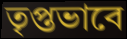
তৃপ্তভাবে